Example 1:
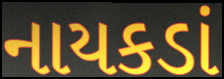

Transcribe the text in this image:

નાયકડાં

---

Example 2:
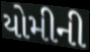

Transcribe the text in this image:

યોમીની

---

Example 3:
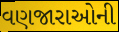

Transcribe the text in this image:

વણજારાઓની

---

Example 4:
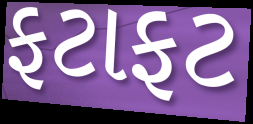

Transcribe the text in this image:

ફટાફટ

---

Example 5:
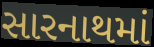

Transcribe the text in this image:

સારનાથમાં